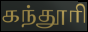
கந்தூரி